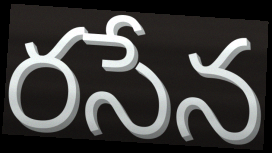
రసేన